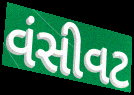
વંસીવટ